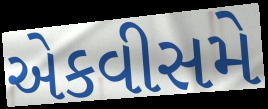
એકવીસમે